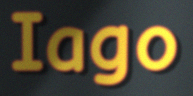
Iago